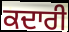
ਕਦਾਰੀ